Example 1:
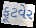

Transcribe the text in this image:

ફૂટવેર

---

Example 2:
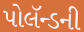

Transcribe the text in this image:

પોલૅન્ડની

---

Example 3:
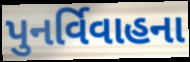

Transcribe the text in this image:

પુનર્વિવાહના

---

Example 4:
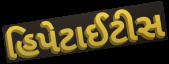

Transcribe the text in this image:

હિપેટાઈટીસ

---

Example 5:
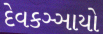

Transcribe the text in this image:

દેવકઞ્ઞાયો